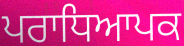
ਪਰਾਧਿਆਪਕ